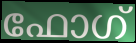
ഫോഗ്